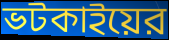
ভটকাইয়ের